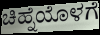
ಚಿಹ್ನೆಯೊಳಗೆ